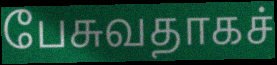
பேசுவதாகச்